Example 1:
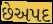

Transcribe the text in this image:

છેઅપદ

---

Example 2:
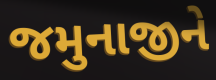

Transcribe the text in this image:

જમુનાજીને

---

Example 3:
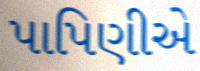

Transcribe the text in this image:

પાપિણીએ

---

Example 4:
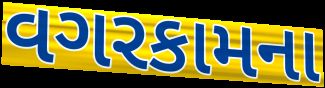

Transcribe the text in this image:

વગરકામના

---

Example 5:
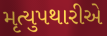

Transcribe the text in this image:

મૃત્યુપથારીએ